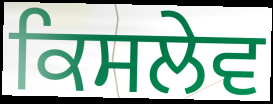
ਕਿਸਲੇਵ